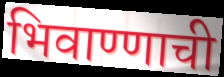
भिवाण्णाची